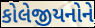
કોલેજીયનોને